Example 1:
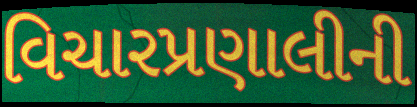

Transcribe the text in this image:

વિચારપ્રણાલીની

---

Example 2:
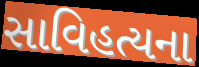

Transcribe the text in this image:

સાવિહત્યના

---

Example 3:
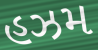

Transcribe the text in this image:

હઝમ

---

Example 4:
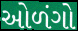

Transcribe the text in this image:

ઓળંગો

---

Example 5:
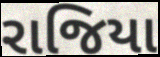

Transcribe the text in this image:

રાજિયા